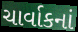
ચાર્વાકનાં